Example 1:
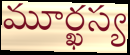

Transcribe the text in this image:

మూర్ఖస్య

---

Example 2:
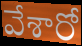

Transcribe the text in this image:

వేశారో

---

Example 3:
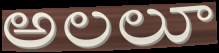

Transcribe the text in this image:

అలలూ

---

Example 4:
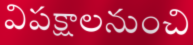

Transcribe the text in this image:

విపక్షాలనుంచి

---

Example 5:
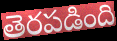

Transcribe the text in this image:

తెరపడింది